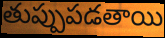
తుప్పుపడతాయి